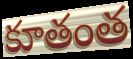
కూతంత